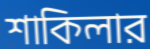
শাকিলার